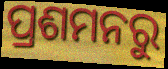
ପ୍ରଶମନରୁ